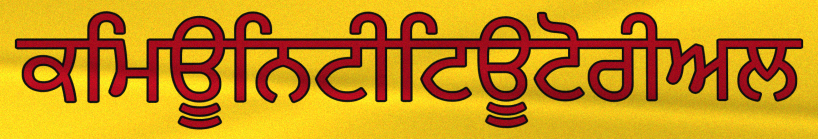
ਕਮਿਊਨਿਟੀਟਿਊਟੋਰੀਅਲ